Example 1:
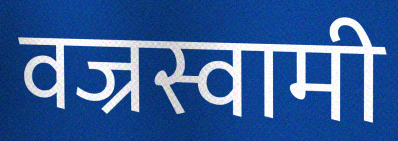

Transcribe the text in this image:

वज्रस्वामी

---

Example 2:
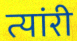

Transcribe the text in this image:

त्यांरी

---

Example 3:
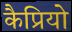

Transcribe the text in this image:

कैप्रियो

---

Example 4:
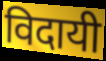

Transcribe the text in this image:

विदायी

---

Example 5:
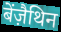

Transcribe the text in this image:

बेंज़ैथिन